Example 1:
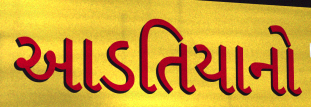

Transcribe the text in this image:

આડતિયાનો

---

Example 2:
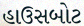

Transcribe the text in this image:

હાઉસબોટ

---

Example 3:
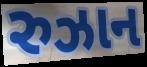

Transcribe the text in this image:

રુઝાન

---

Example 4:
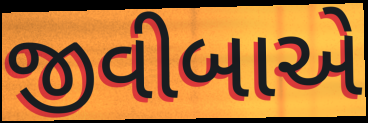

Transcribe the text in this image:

જીવીબાએ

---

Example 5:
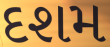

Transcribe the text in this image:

દશમ